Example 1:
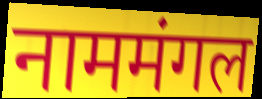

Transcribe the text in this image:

नाममंगल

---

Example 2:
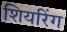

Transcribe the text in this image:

शियरिंग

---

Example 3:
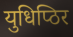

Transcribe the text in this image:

युधिप्ठिर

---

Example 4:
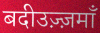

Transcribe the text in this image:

बदीउज़्ज़माँ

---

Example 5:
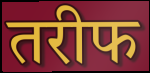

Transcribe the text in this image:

तरीफ